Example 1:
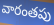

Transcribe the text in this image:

వారంతపు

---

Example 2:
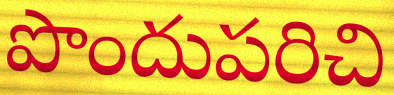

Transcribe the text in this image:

పొందుపరిచి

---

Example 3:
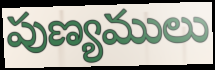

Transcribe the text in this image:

పుణ్యములు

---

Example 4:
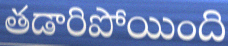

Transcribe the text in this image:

తడారిపోయింది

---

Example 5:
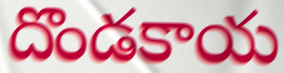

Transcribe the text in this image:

దొండకాయ